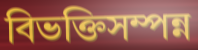
বিভক্তিসম্পন্ন